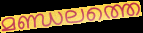
മണ്ഡലത്തെ